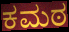
ಕಮಠ